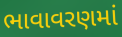
ભાવાવરણમાં